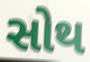
સોથ